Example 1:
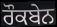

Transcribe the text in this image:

ਰੌਕਬੇਨ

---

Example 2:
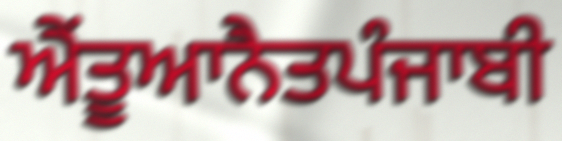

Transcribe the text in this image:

ਐਂਤੂਆਨੈਤਪੰਜਾਬੀ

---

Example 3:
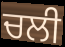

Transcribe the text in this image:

ਚਲੀ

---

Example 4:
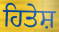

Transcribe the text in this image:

ਹਿਤੇਸ਼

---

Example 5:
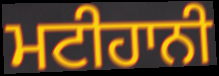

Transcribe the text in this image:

ਮਟੀਹਾਨੀ